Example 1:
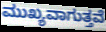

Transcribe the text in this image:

ಮುಖ್ಯವಾಗುತ್ತವೆ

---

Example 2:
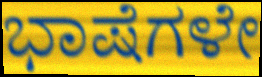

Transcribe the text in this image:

ಭಾಷೆಗಳೇ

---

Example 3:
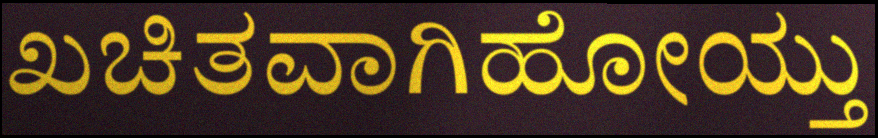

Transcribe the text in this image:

ಖಚಿತವಾಗಿಹೋಯ್ತು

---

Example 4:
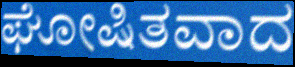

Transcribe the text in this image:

ಘೋಷಿತವಾದ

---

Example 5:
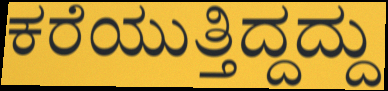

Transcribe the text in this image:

ಕರೆಯುತ್ತಿದ್ದದ್ದು